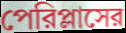
পেরিপ্লাসের